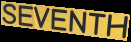
SEVENTH